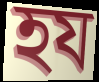
হয